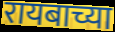
रायबाच्या